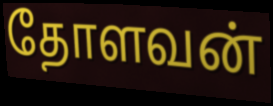
தோளவன்